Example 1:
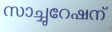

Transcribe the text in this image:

സാച്ചുറേഷന്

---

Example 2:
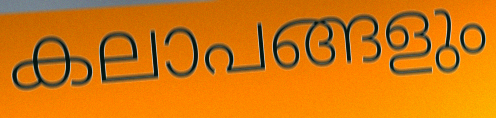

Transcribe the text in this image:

കലാപങ്ങളും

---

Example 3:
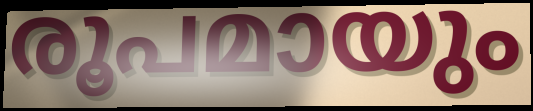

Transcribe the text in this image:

രൂപമായും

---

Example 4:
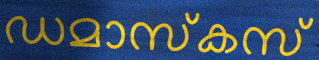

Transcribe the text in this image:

ഡമാസ്കസ്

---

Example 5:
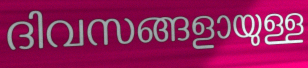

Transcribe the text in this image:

ദിവസങ്ങളായുള്ള